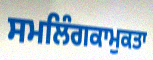
ਸਮਲਿੰਗਕਾਮੁਕਤਾ